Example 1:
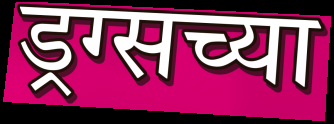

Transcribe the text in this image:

ड्रग्सच्या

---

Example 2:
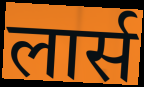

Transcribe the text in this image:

लार्स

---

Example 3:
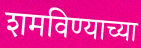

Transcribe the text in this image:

शमविण्याच्या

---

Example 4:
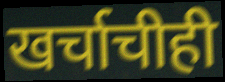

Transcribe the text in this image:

खर्चाचीही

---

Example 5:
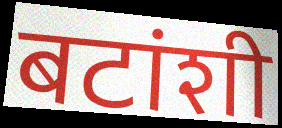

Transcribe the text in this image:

बटांशी